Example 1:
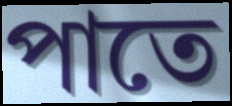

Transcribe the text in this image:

পাতে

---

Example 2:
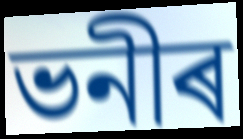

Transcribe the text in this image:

ভনীৰ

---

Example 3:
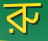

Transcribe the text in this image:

ৰু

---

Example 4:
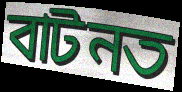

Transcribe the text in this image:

বাটনত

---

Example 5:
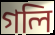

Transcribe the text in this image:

গলি